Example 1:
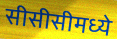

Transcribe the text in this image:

सीसीसीमध्ये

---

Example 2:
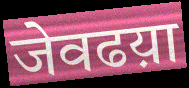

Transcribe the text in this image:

जेवढय़ा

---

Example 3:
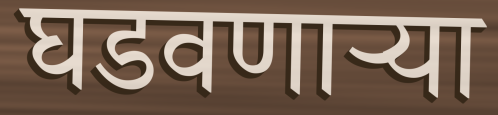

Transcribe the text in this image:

घडवणाऱ्या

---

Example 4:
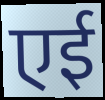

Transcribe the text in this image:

एई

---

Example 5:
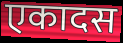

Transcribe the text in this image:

एकादस